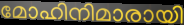
മോഹിനിമാരായി